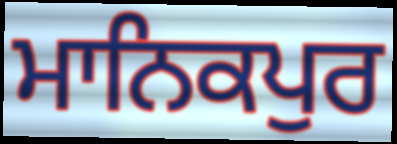
ਮਾਨਿਕਪੁਰ